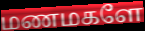
மணமகளே